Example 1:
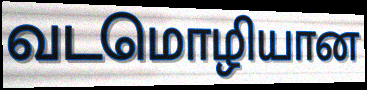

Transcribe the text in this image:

வடமொழியான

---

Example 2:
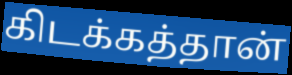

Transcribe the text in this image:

கிடக்கத்தான்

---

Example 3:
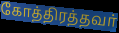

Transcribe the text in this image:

கோத்திரத்தவர்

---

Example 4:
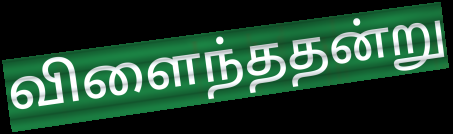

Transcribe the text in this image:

விளைந்ததன்று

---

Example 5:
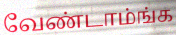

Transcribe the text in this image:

வேண்டாம்ங்க